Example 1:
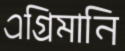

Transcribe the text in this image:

এগ্রিমানি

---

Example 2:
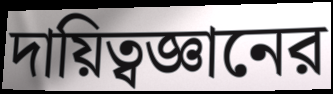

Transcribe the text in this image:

দায়িত্বজ্ঞানের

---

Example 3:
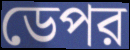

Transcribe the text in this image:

ডেপর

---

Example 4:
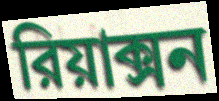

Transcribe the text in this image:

রিয়াক্সন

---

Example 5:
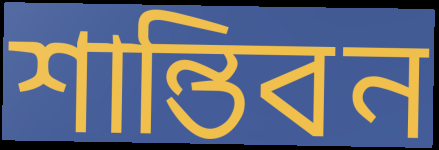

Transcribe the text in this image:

শান্তিবন